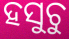
ହସୁଚୁ